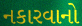
નકારવાનો